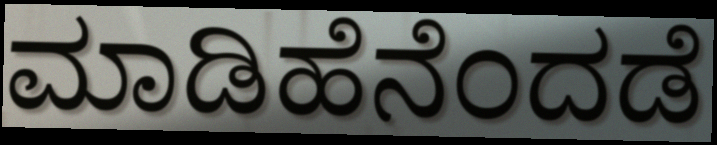
ಮಾಡಿಹೆನೆಂದಡೆ